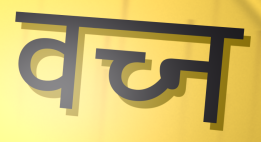
वच्न